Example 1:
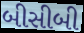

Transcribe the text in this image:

બીસીબી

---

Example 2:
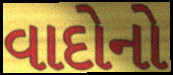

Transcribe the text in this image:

વાદોનો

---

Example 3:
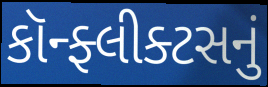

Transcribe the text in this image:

કૉન્ફ્લીક્ટસનું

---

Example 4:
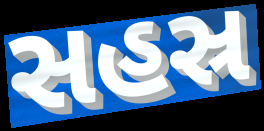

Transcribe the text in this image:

સહસ્ર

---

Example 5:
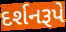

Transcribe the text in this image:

દર્શનરૂપે